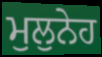
ਮੁਲੁਨੇਹ